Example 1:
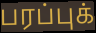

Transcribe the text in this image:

பரப்புக்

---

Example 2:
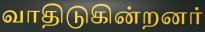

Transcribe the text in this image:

வாதிடுகின்றனர்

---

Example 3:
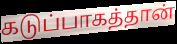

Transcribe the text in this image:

கடுப்பாகத்தான்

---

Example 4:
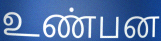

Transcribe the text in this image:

உண்பன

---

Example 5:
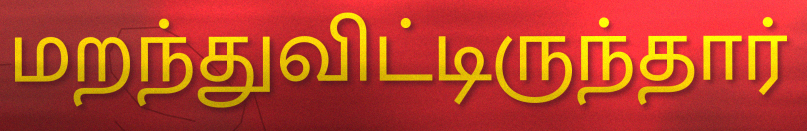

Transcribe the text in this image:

மறந்துவிட்டிருந்தார்